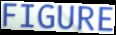
FIGURE